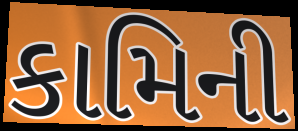
કામિની